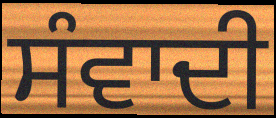
ਸੰਵਾਦੀ